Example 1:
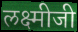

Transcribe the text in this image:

लक्ष्मीजी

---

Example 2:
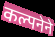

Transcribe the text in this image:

कल्पनेने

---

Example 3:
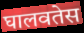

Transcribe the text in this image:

घालवतेस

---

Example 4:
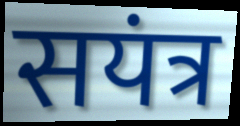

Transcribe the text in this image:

सयंत्र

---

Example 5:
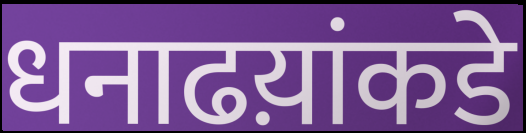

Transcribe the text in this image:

धनाढय़ांकडे